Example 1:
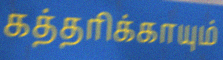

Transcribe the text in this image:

கத்தரிக்காயும்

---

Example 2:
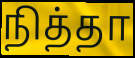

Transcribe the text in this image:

நித்தா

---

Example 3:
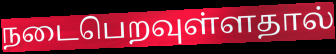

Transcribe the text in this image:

நடைபெறவுள்ளதால்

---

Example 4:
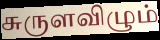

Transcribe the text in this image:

சுருளவிழும்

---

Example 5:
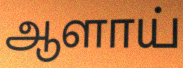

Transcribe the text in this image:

ஆளாய்